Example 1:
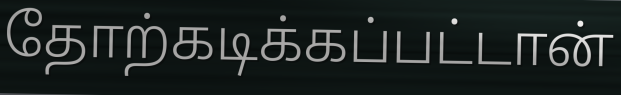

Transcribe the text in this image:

தோற்கடிக்கப்பட்டான்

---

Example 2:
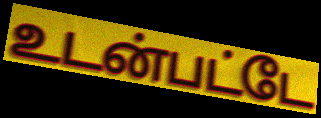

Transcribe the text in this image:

உடன்பட்டே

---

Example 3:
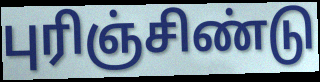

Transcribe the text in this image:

புரிஞ்சிண்டு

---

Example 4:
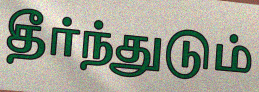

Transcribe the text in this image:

தீர்ந்துடும்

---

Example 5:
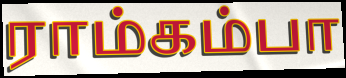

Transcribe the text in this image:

ராம்கம்பா